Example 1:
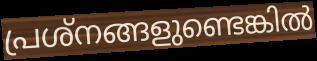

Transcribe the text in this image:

പ്രശ്നങ്ങളുണ്ടെങ്കിൽ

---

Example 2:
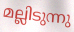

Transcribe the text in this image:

മല്ലിടുന്നു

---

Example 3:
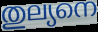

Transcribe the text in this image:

തുല്യനെ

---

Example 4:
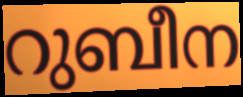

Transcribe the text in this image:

റുബീന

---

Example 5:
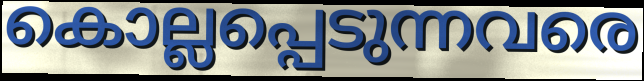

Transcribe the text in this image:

കൊല്ലപ്പെടുന്നവരെ